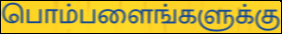
பொம்பளைங்களுக்கு